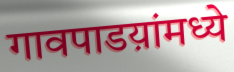
गावपाडय़ांमध्ये